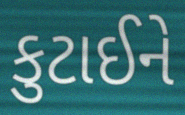
કુટાઈને